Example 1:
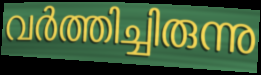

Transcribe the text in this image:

വർത്തിച്ചിരുന്നു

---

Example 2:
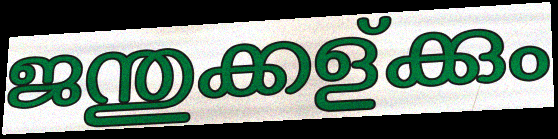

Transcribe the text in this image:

ജന്തുക്കള്ക്കും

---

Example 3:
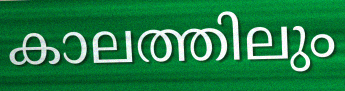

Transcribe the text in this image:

കാലത്തിലും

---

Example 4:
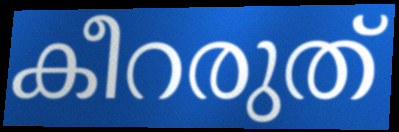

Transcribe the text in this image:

കീറരുത്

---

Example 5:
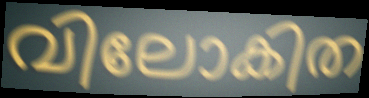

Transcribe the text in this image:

വിലോകിത